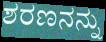
ಶರಣನನ್ನು